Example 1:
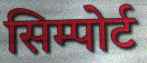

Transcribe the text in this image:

सिम्पोर्ट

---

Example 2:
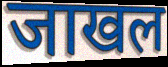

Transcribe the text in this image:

जाखल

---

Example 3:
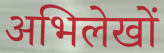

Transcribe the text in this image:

अभिलेखों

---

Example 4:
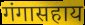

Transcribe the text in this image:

गंगासहाय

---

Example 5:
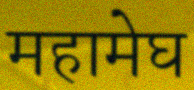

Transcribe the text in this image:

महामेघ